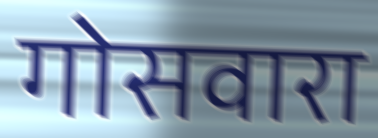
गोसवारा